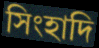
সিংহাদি